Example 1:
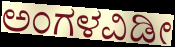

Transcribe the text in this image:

ಅಂಗಳವಿಡೀ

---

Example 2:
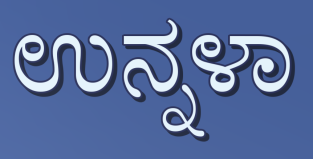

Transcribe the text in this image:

ಉನ್ನಳಾ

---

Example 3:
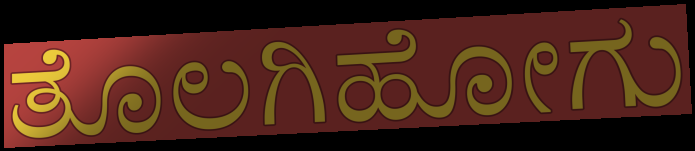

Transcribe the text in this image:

ತೊಲಗಿಹೋಗು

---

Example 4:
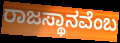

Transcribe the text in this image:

ರಾಜಸ್ಥಾನವೆಂಬ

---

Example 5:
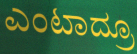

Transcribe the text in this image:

ಎಂಟಾದ್ರೂ